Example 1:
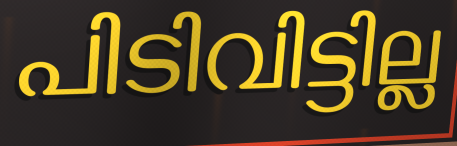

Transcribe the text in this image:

പിടിവിട്ടില്ല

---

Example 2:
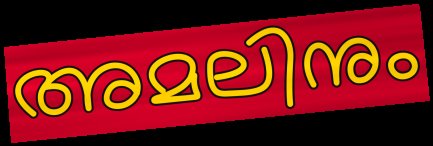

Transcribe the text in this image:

അമലിനും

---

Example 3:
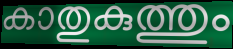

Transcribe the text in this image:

കാതുകുത്തും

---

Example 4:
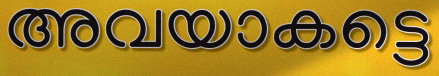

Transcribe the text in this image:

അവയാകട്ടെ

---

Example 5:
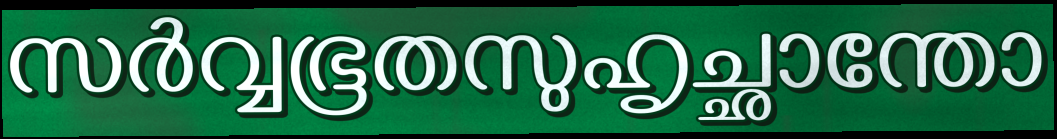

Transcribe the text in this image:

സർവ്വഭൂതസുഹൃച്ഛാന്തോ